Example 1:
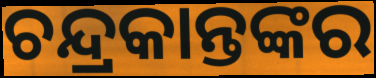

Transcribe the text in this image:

ଚନ୍ଦ୍ରକାନ୍ତଙ୍କର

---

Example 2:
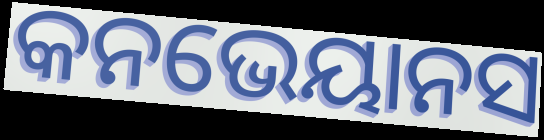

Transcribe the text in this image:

କନଭେୟାନସ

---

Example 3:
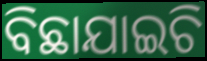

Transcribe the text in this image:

ବିଛାଯାଇଚି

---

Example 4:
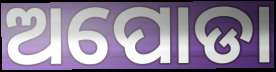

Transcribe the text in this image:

ଅପୋଡା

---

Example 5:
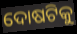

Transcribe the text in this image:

ଦୋଷଟିକୁ